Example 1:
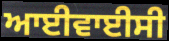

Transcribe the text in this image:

ਆਈਵਾਈਸੀ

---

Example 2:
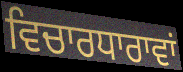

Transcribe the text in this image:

ਵਿਚਾਰਧਾਰਾਵਾਂ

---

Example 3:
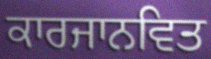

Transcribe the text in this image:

ਕਾਰਜਾਨਵਿਤ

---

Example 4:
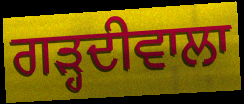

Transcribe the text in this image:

ਗਡ਼੍ਹਦੀਵਾਲਾ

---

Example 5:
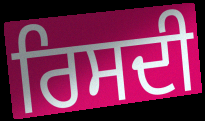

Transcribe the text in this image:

ਰਿਸਦੀ